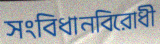
সংবিধানবিরোধী